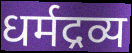
धर्मद्रव्य